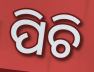
ପିଚି